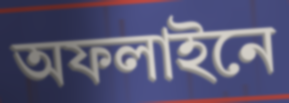
অফলাইনে